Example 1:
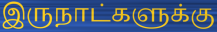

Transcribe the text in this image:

இருநாட்களுக்கு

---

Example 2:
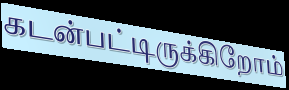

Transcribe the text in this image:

கடன்பட்டிருக்கிறோம்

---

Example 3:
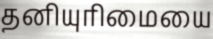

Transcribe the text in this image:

தனியுரிமையை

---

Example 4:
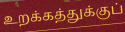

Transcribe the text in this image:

உறக்கத்துக்குப்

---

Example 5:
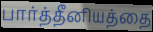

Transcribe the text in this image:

பார்த்தீனியத்தை